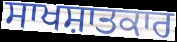
ਸਾਖਸ਼ਾਤਕਾਰ